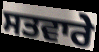
ਸਤਵਾਰੇ